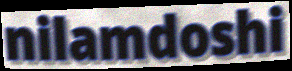
nilamdoshi